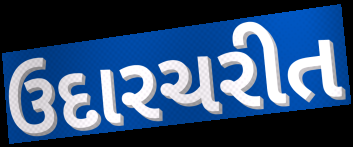
ઉદારચરીત